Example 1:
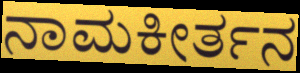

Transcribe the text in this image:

ನಾಮಕೀರ್ತನ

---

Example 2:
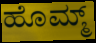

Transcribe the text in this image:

ಹೊಮ್ಮ್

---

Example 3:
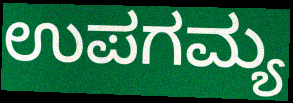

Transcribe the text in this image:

ಉಪಗಮ್ಯ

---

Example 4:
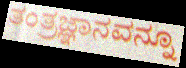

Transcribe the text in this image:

ತಂತ್ರಜ್ಞಾನವನ್ನೂ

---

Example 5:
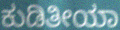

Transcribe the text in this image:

ಕುಡಿತೀಯಾ